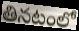
తినటంలో